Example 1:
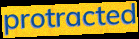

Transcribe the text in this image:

protracted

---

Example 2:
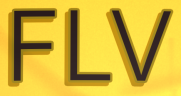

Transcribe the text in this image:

FLV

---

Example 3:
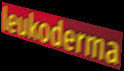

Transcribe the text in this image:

leukoderma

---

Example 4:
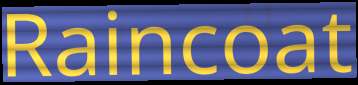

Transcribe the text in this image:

Raincoat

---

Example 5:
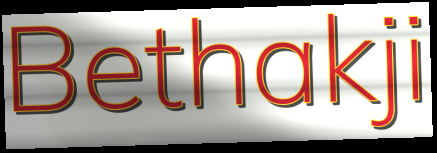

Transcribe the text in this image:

Bethakji